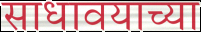
साधावयाच्या